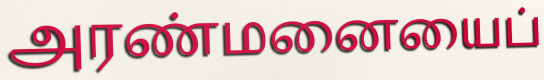
அரண்மனையைப்